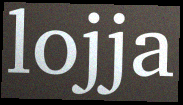
lojja